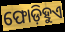
ଫୋଡ଼ିହୁଏ